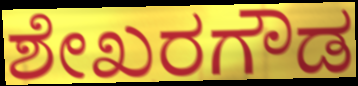
ಶೇಖರಗೌಡ